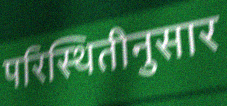
परिस्थितीनुसार